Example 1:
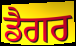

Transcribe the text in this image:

ਡੈਗਰ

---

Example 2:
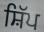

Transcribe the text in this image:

ਸ਼ਿੱਪ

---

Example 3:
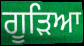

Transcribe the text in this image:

ਗੂੜਿਆ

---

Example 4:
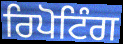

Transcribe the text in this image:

ਰਿਪੋਟਿੰਗ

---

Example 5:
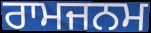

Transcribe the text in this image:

ਰਾਮਜਨਮ